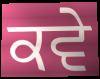
ਕਵੇ